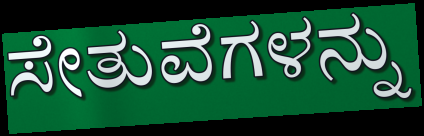
ಸೇತುವೆಗಳನ್ನು